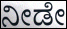
ನೀಡೇ